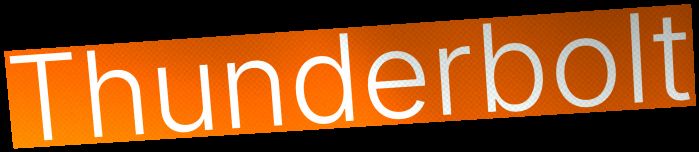
Thunderbolt